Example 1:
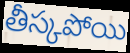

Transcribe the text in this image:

తీస్కపోయి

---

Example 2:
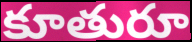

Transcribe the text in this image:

కూతురూ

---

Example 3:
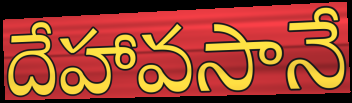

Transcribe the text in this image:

దేహావసానే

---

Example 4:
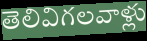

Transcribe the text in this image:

తెలివిగలవాళ్లు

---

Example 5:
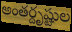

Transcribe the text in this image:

అంతర్దృష్టుల